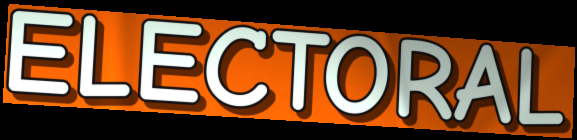
ELECTORAL